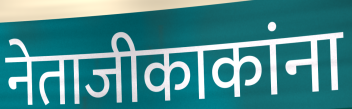
नेताजीकाकांना